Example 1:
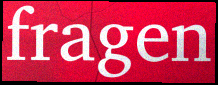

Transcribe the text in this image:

fragen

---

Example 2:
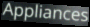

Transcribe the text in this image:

Appliances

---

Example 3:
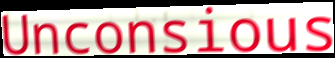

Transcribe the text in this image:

Unconsious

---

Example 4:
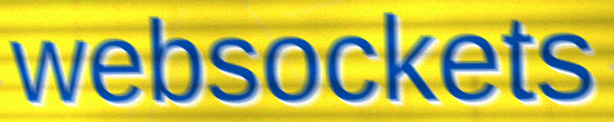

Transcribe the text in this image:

websockets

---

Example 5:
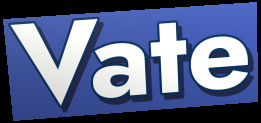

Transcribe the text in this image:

Vate